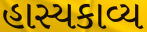
હાસ્યકાવ્ય